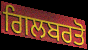
ਗਿਲਬਰਤੋ